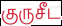
குருசீட